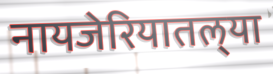
नायजेरियातल्या